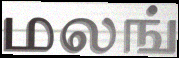
மலங்